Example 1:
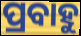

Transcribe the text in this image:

ପ୍ରବାହୁ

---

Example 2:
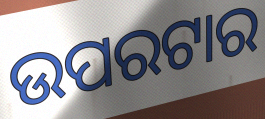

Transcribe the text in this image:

ଉପରଟାର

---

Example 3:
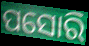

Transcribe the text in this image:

ପସୋରି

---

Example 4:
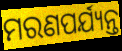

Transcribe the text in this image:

ମରଣପର୍ଯ୍ୟନ୍ତ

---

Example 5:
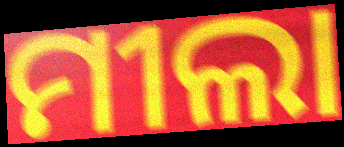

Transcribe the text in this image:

ମୀଲା